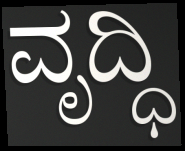
ವೃದ್ಧಿ